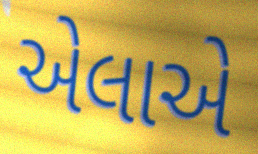
એલાએ